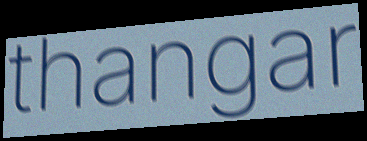
thangar